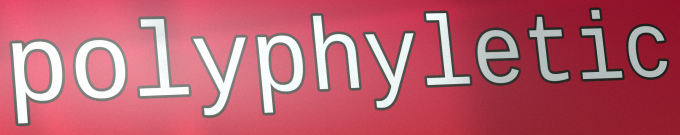
polyphyletic